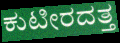
ಕುಟೀರದತ್ತ